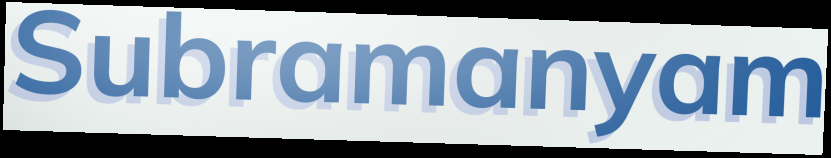
Subramanyam